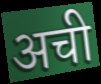
अची